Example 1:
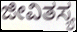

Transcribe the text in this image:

ಜೀವಿತಸ್ಯ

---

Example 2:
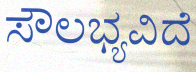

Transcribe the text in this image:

ಸೌಲಭ್ಯವಿದೆ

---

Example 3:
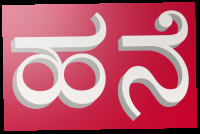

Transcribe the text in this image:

ಹನೆ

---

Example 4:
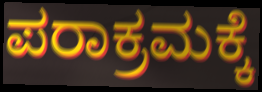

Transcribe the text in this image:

ಪರಾಕ್ರಮಕ್ಕೆ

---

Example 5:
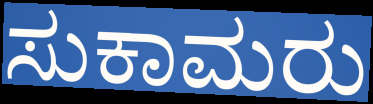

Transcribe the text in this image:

ಸುಕಾಮರು